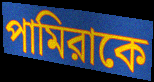
পামিরাকে